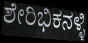
ಶೇರಿಭಿಕನಳ್ಳಿ